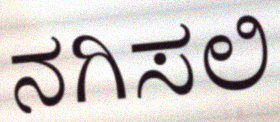
ನಗಿಸಲಿ